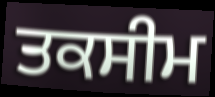
ਤਕਸੀਮ